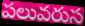
పలువరుస